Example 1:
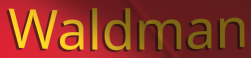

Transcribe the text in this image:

Waldman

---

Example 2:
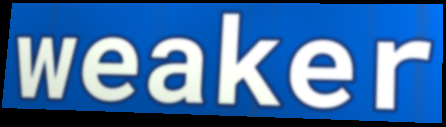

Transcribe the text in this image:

weaker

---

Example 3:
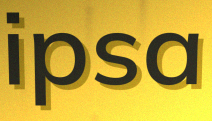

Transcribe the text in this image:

ipsa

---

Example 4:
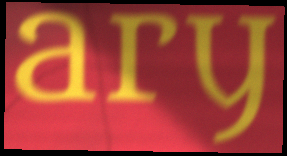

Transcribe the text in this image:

ary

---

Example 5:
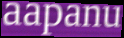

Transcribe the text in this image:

aapanu